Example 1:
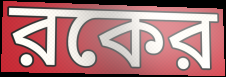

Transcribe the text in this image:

রকের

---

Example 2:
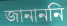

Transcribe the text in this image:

জানাননি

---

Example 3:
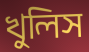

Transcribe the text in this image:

খুলিস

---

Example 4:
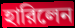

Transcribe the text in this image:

হারিলেন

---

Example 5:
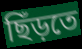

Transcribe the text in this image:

ছিঁড়তে